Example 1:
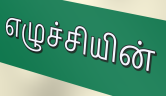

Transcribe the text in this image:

எழுச்சியின்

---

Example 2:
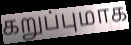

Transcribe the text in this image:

கறுப்புமாக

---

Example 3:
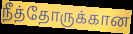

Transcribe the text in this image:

நீத்தோருக்கான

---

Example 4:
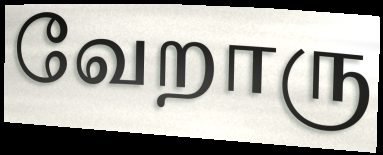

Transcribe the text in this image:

வேறாரு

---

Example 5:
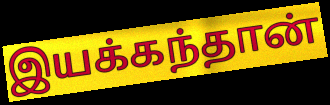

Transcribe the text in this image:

இயக்கந்தான்